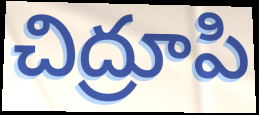
చిద్రూపి